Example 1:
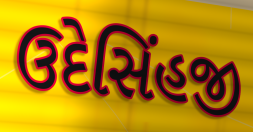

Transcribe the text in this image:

ઉદેસિંહજી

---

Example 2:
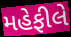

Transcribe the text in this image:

મહેફીલે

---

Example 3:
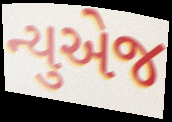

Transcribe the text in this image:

ન્યુએજ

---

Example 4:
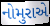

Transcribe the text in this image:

નોમુરાએ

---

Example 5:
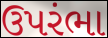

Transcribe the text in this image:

ઉપરંભા